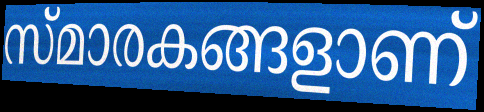
സ്മാരകങ്ങളാണ്